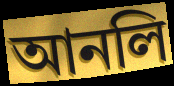
আনলি